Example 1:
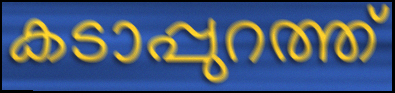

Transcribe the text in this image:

കടാപ്പുറത്ത്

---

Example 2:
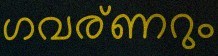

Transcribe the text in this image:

ഗവര്ണറും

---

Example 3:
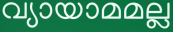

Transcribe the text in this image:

വ്യായാമമല്ല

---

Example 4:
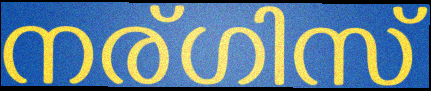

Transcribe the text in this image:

നര്ഗിസ്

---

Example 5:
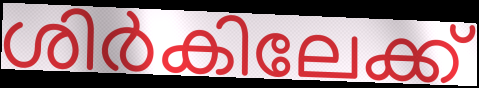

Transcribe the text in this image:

ശിർകിലേക്ക്